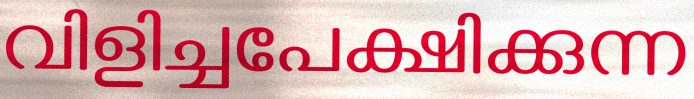
വിളിച്ചപേക്ഷിക്കുന്ന